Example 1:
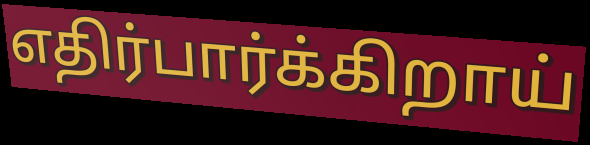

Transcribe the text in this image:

எதிர்பார்க்கிறாய்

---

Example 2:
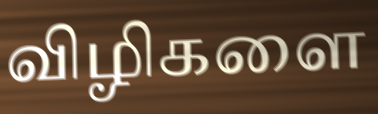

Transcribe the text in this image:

விழிகளை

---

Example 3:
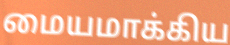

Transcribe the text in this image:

மையமாக்கிய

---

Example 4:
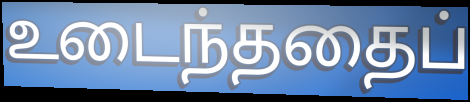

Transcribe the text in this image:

உடைந்ததைப்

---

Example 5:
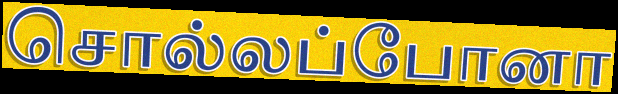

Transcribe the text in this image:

சொல்லப்போனா